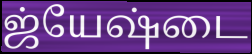
ஜ்யேஷ்டை